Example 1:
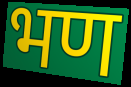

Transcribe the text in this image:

भण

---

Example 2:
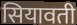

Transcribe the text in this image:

सियावती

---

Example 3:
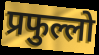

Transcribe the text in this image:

प्रफुल्लो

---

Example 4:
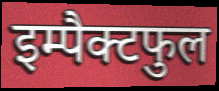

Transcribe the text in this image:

इम्पैक्टफुल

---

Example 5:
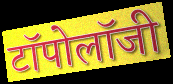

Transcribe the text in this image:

टॉपोलॉजी